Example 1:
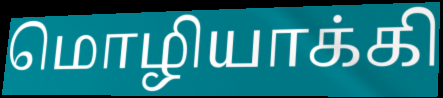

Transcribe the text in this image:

மொழியாக்கி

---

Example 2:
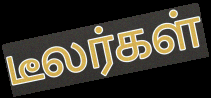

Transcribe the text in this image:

டீலர்கள்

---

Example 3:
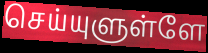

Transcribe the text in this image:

செய்யுளுள்ளே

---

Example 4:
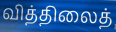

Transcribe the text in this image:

வித்திலைத்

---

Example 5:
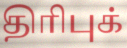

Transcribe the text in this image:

திரிபுக்